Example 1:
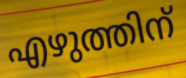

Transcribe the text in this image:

എഴുത്തിന്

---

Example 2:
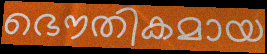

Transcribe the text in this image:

ഭൌതികമായ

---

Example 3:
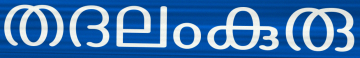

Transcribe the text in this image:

തദലംകുരു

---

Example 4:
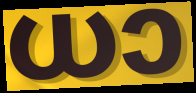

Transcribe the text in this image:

ധാ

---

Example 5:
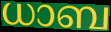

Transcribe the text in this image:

ധാബ